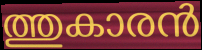
ത്തുകാരൻ